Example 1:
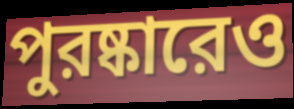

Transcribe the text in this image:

পুরষ্কারেও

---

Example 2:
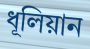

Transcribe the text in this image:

ধূলিয়ান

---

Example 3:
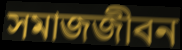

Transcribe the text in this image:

সমাজজীবন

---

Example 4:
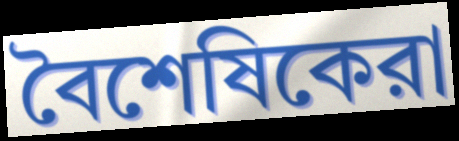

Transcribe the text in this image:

বৈশেষিকেরা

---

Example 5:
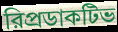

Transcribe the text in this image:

রিপ্রডাকটিভ